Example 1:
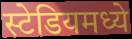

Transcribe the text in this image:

स्टेडियमध्ये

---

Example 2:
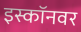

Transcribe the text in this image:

इस्कॉनवर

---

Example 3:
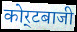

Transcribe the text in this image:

कोर्टबाजी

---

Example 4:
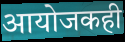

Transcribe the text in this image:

आयोजकही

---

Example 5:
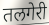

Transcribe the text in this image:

तलगेरी